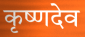
कृष्‍णदेव